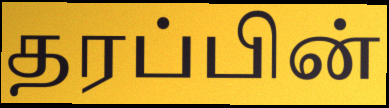
தரப்பின்